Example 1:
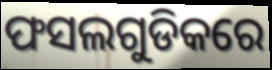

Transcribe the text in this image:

ଫସଲଗୁଡିକରେ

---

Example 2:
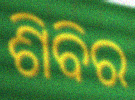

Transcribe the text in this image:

ଶିବିର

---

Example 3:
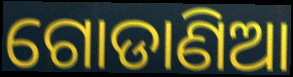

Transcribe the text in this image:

ଗୋଡାଣିଆ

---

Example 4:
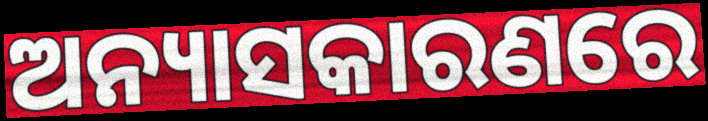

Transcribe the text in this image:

ଅନ୍ୟାସକାରଣରେ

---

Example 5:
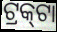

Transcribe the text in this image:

ଟ୍ରକ୍‌ଟା